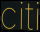
citi